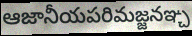
ఆజానీయపరిమజ్జనఞ్చ